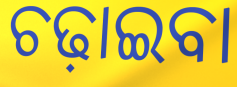
ଚଢ଼ାଇବା